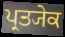
ਪ੍ਰਤ੍ਯੇਕ